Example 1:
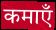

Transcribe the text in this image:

कमाएँ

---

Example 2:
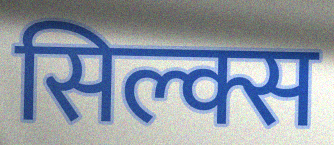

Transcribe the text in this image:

सिल्क्स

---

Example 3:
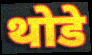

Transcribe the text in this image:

थोडे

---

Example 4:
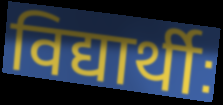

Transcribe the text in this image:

विद्यार्थीः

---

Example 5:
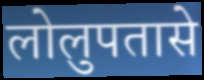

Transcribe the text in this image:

लोलुपतासे